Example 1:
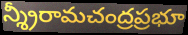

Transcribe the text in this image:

న్శ్రీరామచంద్రప్రభూ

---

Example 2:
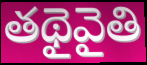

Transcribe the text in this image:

తథైవైతి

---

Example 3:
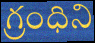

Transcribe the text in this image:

గ్రంధిని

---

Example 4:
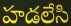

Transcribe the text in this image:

హడలేసి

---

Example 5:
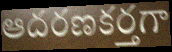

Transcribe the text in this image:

ఆదరణకర్తగా